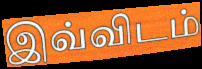
இவ்விடம்